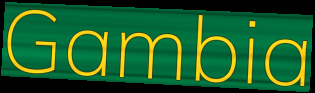
Gambia